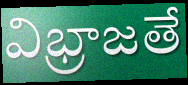
విభ్రాజతే